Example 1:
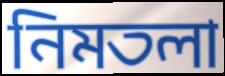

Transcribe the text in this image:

নিমতলা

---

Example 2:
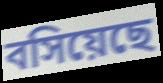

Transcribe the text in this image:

বসিয়েছে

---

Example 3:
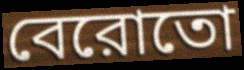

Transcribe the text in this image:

বেরোতো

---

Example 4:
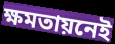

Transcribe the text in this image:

ক্ষমতায়নেই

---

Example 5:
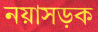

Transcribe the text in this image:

নয়াসড়ক